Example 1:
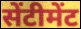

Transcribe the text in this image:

सेंटीमेंट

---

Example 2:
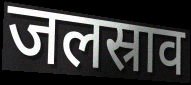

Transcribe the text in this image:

जलस्राव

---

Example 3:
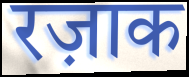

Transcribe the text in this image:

रज़ाक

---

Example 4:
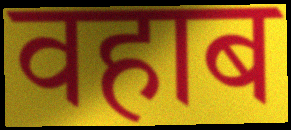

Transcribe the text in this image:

वहाब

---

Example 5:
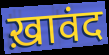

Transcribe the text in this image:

ख़ावंद